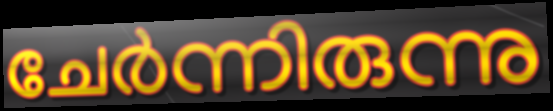
ചേർന്നിരുന്നു